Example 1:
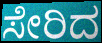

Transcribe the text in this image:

ಸೇರಿದ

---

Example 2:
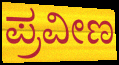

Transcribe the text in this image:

ಪ್ರವೀಣ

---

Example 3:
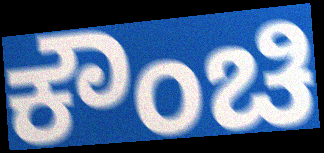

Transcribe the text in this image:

ಕೌಂಚಿ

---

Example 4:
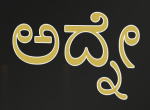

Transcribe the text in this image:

ಅದ್ನೇ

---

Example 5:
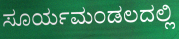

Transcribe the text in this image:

ಸೂರ್ಯಮಂಡಲದಲ್ಲಿ